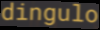
dingulo